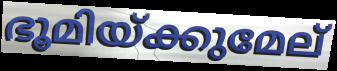
ഭൂമിയ്ക്കുമേല്